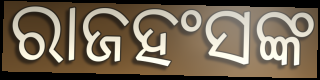
ରାଜହଂସଙ୍କ